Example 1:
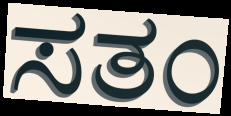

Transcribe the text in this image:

ಸತಂ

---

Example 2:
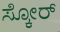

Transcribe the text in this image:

ಸ್ಕೋರ್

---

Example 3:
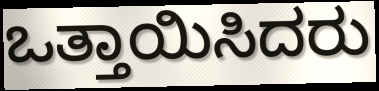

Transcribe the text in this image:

ಒತ್ತಾಯಿಸಿದರು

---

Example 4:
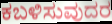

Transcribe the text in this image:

ಕಬಳಿಸುವುದರ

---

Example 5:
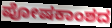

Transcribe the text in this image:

ಪೋಷಕಾಂಶದ